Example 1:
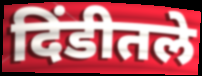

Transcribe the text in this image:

दिंडीतले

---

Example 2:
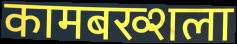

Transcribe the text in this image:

कामबख्शला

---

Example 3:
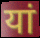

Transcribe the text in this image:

यां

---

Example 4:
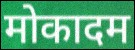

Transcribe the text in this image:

मोकादम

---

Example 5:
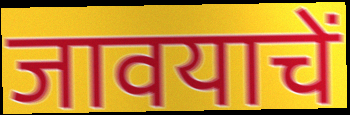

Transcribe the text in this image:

जावयाचें